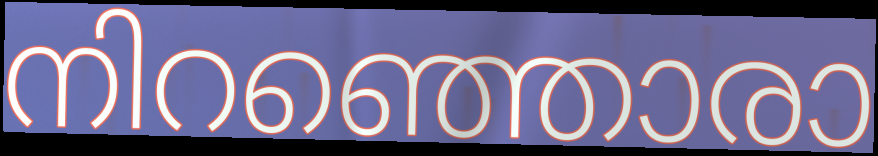
നിറഞ്ഞൊരാ